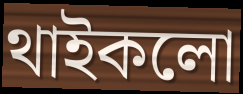
থাইকলো